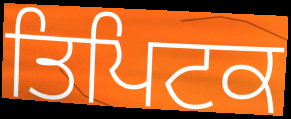
ਤਿਪਿਟਕ